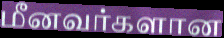
மீனவர்களான